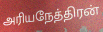
அரியநேத்திரன்